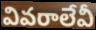
వివరాలేవీ